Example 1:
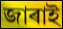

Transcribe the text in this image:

জাৰাই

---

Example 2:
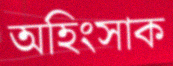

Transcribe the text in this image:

অহিংসাক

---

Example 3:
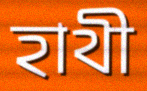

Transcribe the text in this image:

হাথী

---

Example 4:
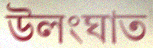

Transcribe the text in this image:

উলংঘাত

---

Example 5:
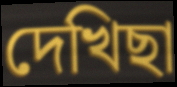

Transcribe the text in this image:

দেখিছা